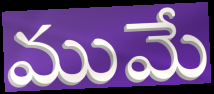
ముమే